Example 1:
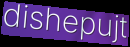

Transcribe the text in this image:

dishepujt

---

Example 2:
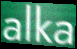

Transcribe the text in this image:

alka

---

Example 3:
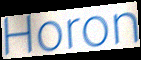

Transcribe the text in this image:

Horon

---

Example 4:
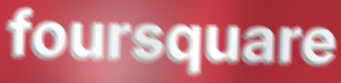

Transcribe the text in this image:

foursquare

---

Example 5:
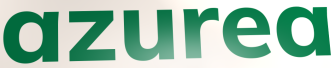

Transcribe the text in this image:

azurea